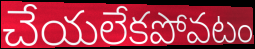
చేయలేకపోవటం